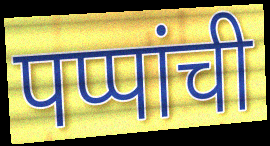
पप्पांची